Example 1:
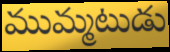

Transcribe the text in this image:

ముమ్మటుడు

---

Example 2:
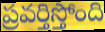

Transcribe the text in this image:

ప్రవర్తిస్తోంది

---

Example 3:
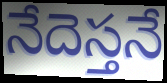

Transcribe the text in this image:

నేదెస్తనే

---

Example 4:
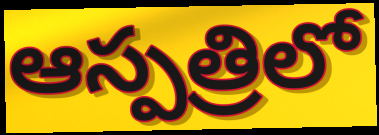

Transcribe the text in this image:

ఆస్పత్రిలో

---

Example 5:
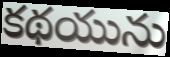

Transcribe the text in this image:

కథయును